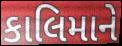
કાલિમાને